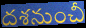
దశనుంచీ